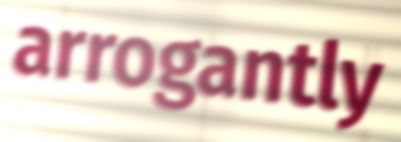
arrogantly